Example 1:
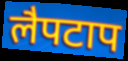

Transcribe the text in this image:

लैपटाप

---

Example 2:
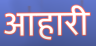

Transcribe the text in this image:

आहारी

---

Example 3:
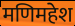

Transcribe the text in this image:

मणिमहेश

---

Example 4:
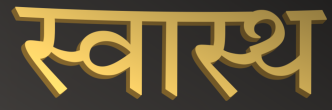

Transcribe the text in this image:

स्‍वास्‍थ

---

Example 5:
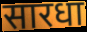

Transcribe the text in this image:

सारधा